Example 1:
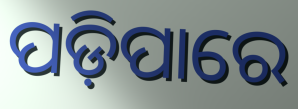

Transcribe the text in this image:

ପଡ଼ିପାରେ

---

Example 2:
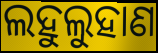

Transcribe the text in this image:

ଲହୁଲୁହାଣ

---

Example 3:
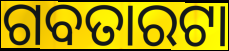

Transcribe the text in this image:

ଗବତାରଟା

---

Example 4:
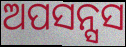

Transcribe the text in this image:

ଅପସନ୍ସସ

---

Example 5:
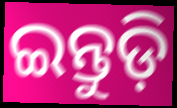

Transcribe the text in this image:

ଇନ୍ତୁଡ଼ି